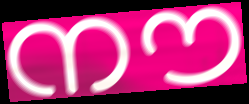
നൗ